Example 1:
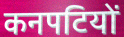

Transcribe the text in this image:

कनपटियों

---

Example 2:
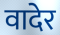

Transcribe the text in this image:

वादेर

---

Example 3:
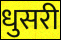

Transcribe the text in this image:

धुसरी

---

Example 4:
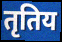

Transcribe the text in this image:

तृतिय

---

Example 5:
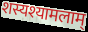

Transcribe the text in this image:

शस्यश्यामलाम्